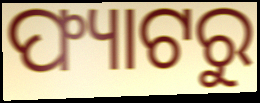
ଫ୍ୟାଟରୁ